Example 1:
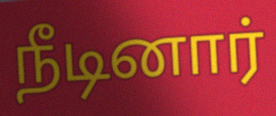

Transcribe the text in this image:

நீடினார்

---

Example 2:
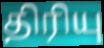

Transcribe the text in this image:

திரியு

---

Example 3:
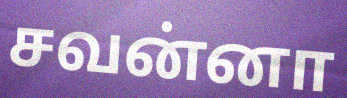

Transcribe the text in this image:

சவன்னா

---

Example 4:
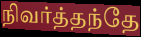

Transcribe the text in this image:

நிவர்த்தந்தே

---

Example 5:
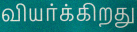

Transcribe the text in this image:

வியர்க்கிறது